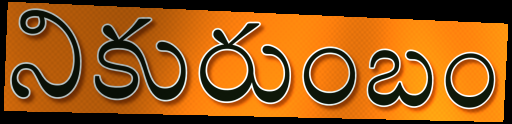
నికురుంబం